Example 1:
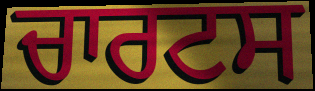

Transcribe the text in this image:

ਚਾਰਟਸ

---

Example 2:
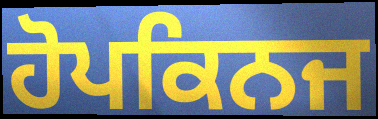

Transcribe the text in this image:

ਹੋਪਕਿਨਜ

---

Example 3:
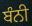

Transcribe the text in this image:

ਬੰਨੀ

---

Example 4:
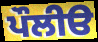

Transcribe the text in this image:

ਪੌਲੀੳ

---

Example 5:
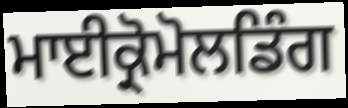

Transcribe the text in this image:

ਮਾਈਕ੍ਰੋਮੋਲਡਿੰਗ